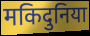
मकिदुनिया